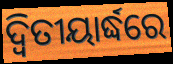
ଦ୍ବିତୀୟାର୍ଦ୍ଧରେ